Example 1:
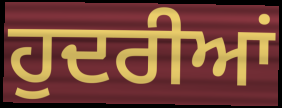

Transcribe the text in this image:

ਹੁਦਰੀਆਂ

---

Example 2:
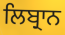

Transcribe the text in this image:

ਲਿਬ੍ਰਾਨ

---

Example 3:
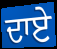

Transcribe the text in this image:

ਦਾਏ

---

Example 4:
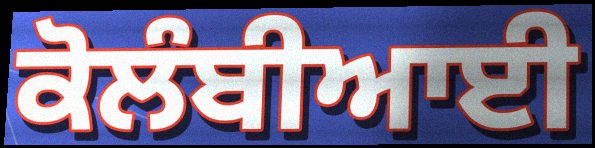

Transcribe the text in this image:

ਕੋਲੰਬੀਆਈ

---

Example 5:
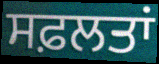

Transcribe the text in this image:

ਸਫ਼ਲਤਾਂ